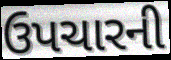
ઉપચારની